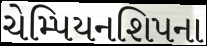
ચેમ્પિયનશિપના